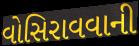
વોસિરાવવાની